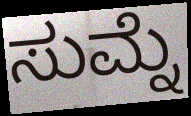
ಸುಮ್ನೆ